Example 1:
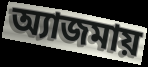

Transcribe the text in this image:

অ্যাজমায়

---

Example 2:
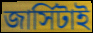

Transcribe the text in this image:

জার্সিটাই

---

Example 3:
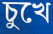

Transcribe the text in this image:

চুখে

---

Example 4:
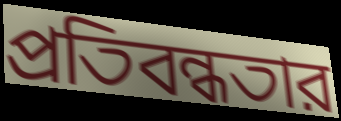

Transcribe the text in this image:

প্রতিবন্ধতার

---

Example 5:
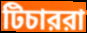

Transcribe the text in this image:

টিচাররা